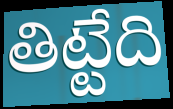
తిట్టేది